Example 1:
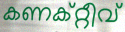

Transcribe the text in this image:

കണക്റ്റീവ്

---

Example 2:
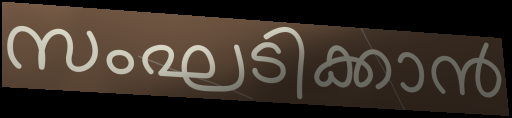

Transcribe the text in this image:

സംഘടിക്കാൻ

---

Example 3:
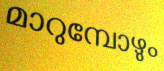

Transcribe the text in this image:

മാറുമ്പോഴും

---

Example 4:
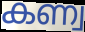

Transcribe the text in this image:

കണ്വ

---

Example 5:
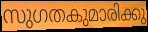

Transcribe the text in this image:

സുഗതകുമാരിക്കു